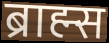
ब्राह्म्स